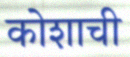
कोशाची